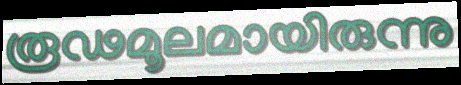
രൂഢമൂലമായിരുന്നു